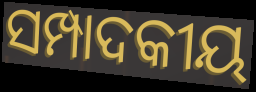
ସମ୍ପାଦକୀୟ